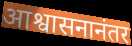
आश्वासनानंतर